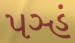
પઞ્હં